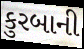
કુરબાની